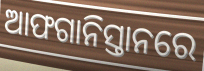
ଆଫଗାନିସ୍ତାନରେ